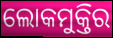
ଲୋକମୁକ୍ତିର